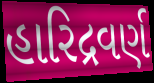
હારિદ્રવર્ણ